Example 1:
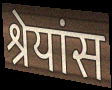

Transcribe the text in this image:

श्रेयांस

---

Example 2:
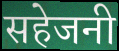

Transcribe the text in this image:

सहेजनी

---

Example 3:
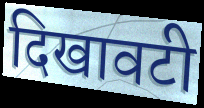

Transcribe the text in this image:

दिखावटी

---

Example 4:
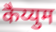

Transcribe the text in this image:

कैय्युम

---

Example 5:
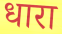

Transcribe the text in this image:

धारा